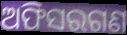
ଅଫିସରଗଣ